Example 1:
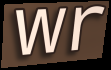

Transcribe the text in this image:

wr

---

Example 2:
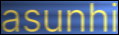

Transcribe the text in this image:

asunhi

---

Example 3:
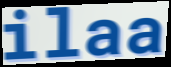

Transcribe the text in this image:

ilaa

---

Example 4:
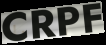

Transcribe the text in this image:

CRPF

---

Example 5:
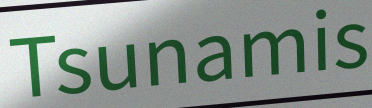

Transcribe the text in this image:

Tsunamis